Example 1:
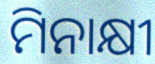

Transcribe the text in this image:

ମିନାକ୍ଷୀ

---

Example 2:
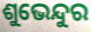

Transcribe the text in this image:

ଶୁଭେନ୍ଦୁର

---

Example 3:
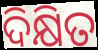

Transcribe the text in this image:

ଦିକ୍ଷିତ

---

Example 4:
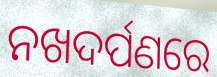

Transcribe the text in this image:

ନଖଦର୍ପଣରେ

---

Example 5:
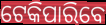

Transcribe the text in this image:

ଟେକିପାରିବେ